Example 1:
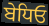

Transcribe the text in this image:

ਬੇਧਿਓ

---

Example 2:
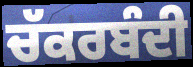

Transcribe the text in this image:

ਚੱਕਰਬੰਦੀ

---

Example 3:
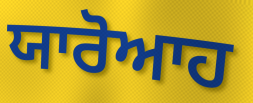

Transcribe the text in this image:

ਯਾਰੋਆਹ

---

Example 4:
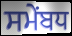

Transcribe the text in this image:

ਸਮੇਂਬਧ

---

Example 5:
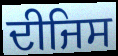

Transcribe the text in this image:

ਦੀਜਿਸ